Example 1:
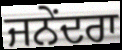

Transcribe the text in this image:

ਜਨੇਂਦਰਾ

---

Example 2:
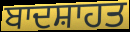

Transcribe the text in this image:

ਬਾਦਸ਼ਾਹਤ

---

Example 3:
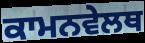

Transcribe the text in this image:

ਕਾਮਨਵੇਲਥ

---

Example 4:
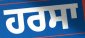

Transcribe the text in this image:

ਹਰਸਾ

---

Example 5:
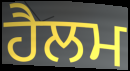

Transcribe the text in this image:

ਹੈਲਮ